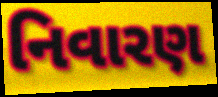
નિવારણ